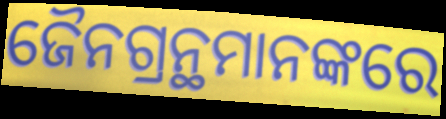
ଜୈନଗ୍ରନ୍ଥମାନଙ୍କରେ